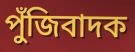
পুঁজিবাদক